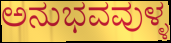
ಅನುಭವವುಳ್ಳ